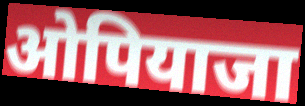
ओपियाजा